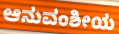
ಆನುವಂಶೀಯ